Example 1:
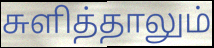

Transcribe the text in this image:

சுளித்தாலும்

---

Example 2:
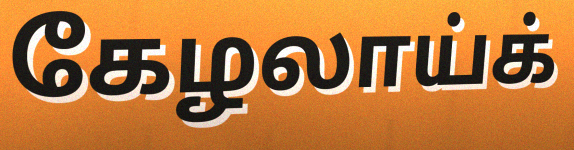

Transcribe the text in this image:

கேழலாய்க்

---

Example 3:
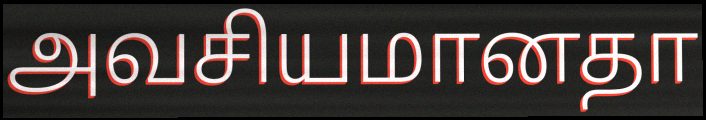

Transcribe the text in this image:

அவசியமானதா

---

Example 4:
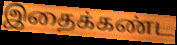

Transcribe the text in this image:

இதைக்கண்ட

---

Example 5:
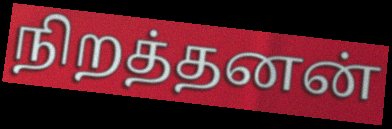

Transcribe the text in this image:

நிறத்தனன்